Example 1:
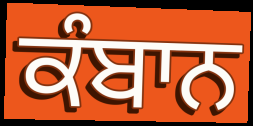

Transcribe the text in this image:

ਕੰਬਾਨ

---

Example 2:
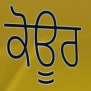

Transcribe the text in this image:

ਕੋਊਰ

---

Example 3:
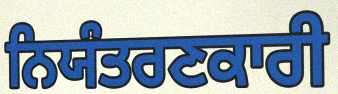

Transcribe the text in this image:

ਨਿਯੰਤਰਣਕਾਰੀ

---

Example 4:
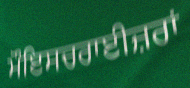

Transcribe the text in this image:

ਮੌਇਸਚਰਾਈਜ਼ਰਾਂ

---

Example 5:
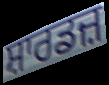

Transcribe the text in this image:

ਸ਼ਾਰਡਜ਼